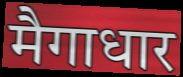
मैगाधार